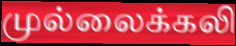
முல்லைக்கலி